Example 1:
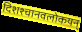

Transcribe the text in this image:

दिशश्चानवलोकयन्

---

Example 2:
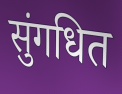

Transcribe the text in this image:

सुंगधित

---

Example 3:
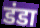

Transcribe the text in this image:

डंडा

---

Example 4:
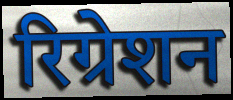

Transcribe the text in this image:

रिग्रेशन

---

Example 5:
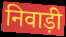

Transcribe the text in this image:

निवाड़ी